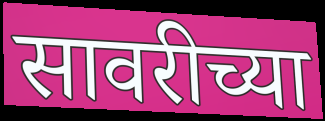
सावरीच्या